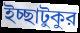
ইচ্ছাটুকুর